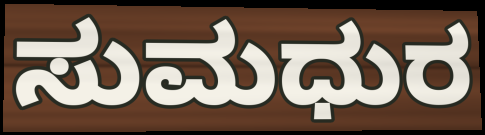
ಸುಮಧುರ